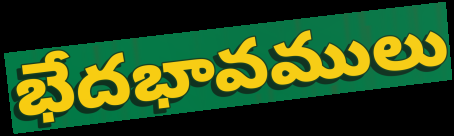
భేదభావములు